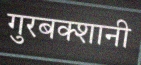
गुरबक्शानी